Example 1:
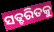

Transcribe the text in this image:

ସତ୍ଚରିତକୁ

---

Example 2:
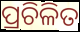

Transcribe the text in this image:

ପ୍ରଚିଳିତ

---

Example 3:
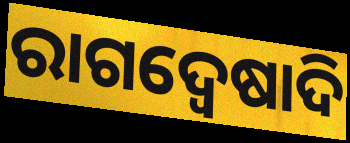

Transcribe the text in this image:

ରାଗଦ୍ୱେଷାଦି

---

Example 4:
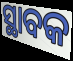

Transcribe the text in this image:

ସ୍ଥାବକ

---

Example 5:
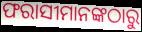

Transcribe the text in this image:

ଫରାସୀମାନଙ୍କଠାରୁ